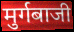
मुर्गबाजी